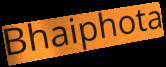
Bhaiphota